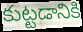
కుట్టడానికి